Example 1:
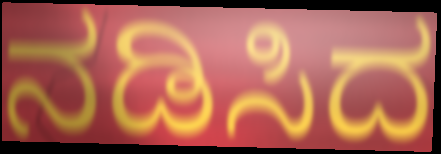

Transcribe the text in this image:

ನಡಿಸಿದ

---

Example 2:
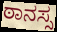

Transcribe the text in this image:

ಠಾನಸ್ಸ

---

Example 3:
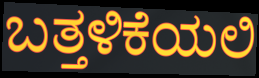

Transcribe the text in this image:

ಬತ್ತಳಿಕೆಯಲಿ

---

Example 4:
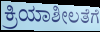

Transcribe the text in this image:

ಕ್ರಿಯಾಶೀಲತೆಗೆ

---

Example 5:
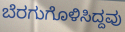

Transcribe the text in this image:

ಬೆರಗುಗೊಳಿಸಿದ್ದವು